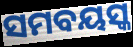
ସମବୟସ୍କ